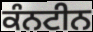
ਕੰਨਟੀਨ